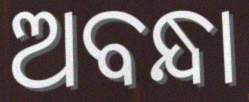
ଅବନ୍ଧା